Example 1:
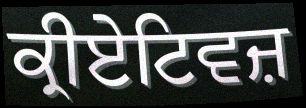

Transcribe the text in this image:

ਕ੍ਰੀਏਟਿਵਜ਼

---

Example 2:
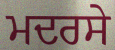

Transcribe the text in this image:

ਮਦਰਸੇ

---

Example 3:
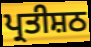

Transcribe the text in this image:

ਪ੍ਰਤੀਸ਼ਠ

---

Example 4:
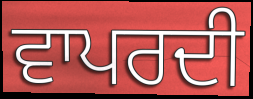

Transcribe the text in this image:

ਵਾਪਰਦੀ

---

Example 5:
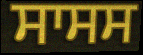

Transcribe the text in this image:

ਸਾਸਸ